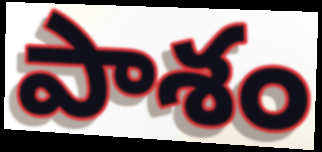
పాశం